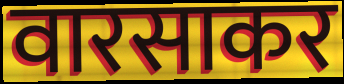
वारसाकर